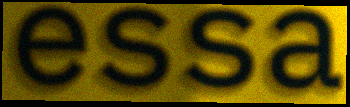
essa